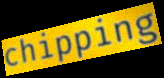
chipping